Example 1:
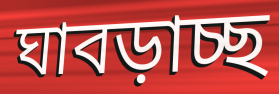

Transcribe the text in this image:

ঘাবড়াচ্ছ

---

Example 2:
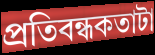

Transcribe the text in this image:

প্রতিবন্ধকতাটা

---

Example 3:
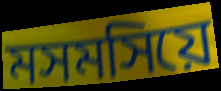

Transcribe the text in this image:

মসমসিয়ে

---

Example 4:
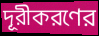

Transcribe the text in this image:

দূরীকরণের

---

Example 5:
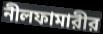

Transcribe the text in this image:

নীলফামারীর